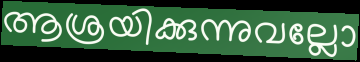
ആശ്രയിക്കുന്നുവല്ലോ